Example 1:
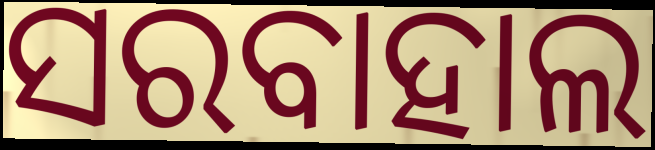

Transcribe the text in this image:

ସରବାହାଲ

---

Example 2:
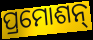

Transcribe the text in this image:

ପ୍ରମୋଶନ୍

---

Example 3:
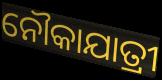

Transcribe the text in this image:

ନୌକାଯାତ୍ରୀ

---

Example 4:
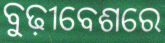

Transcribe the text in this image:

ବୁଢ଼ୀବେଶରେ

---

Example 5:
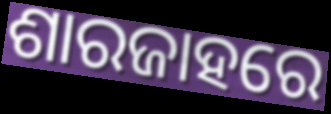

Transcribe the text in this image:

ଶାରଜାହରେ